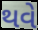
થવે